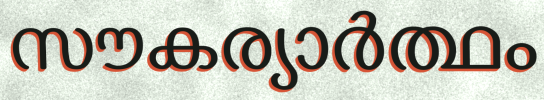
സൗകര്യാർത്ഥം